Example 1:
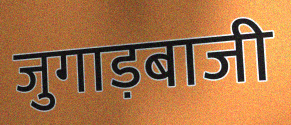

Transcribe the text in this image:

जुगाड़बाजी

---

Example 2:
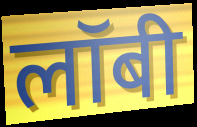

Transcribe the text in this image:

लॉबी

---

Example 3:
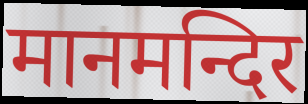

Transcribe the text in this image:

मानमन्दिर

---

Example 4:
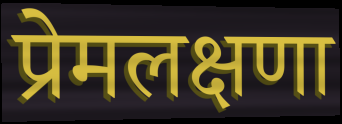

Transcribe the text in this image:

प्रेमलक्षणा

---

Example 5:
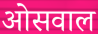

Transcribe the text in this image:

ओसवाल